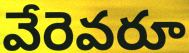
వేరెవరూ